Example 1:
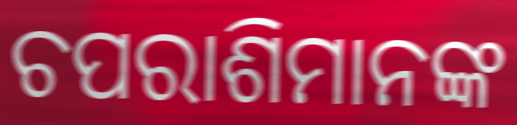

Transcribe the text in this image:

ଚପରାଶିମାନଙ୍କ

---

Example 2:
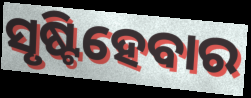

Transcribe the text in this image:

ସୃଷ୍ଟିହେବାର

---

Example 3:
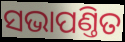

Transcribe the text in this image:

ସଭାପଣ୍ତିତ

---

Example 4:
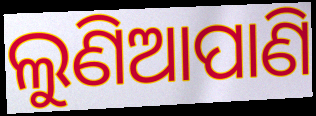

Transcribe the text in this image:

ଲୁଣିଆପାଣି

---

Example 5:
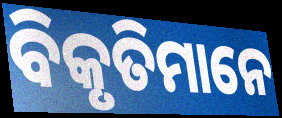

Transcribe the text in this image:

ବିକୃତିମାନେ